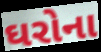
ઘરોના